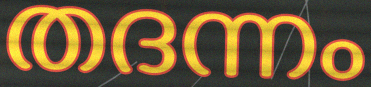
തദന്നം